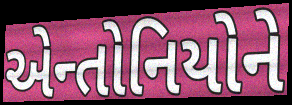
એન્તોનિયોને